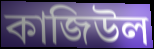
কাজিউল